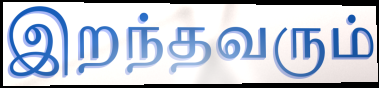
இறந்தவரும்